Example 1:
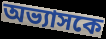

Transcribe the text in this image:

অভ্যাসকে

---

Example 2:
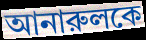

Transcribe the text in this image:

আনারুলকে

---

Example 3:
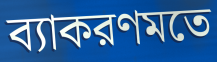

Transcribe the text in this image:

ব্যাকরণমতে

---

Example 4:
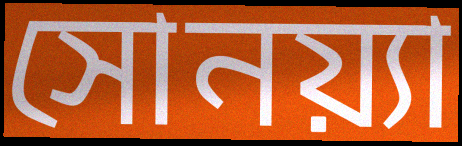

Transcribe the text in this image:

সোনয়্যা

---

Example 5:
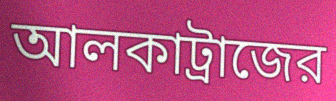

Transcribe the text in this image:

আলকাট্রাজের